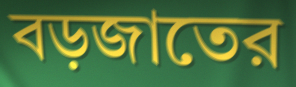
বড়জাতের